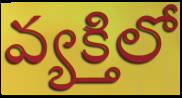
వ్యక్తిలో